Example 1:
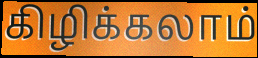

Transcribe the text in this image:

கிழிக்கலாம்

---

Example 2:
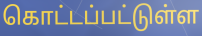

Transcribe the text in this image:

கொட்டப்பட்டுள்ள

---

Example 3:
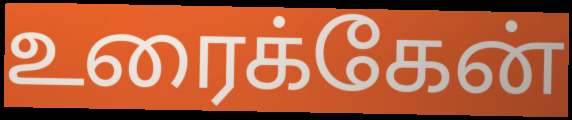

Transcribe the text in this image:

உரைக்கேன்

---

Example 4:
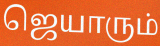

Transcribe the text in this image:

ஜெயாரும்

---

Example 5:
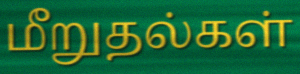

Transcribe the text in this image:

மீறுதல்கள்